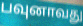
பவுனாவது